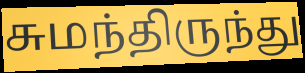
சுமந்திருந்து